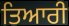
ਤਿਆਰੀ